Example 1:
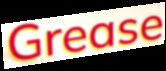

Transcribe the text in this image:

Grease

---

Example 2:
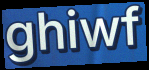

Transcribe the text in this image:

ghiwf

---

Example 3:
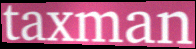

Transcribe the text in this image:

taxman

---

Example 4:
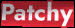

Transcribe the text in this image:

Patchy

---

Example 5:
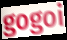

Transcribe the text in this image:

gogoi